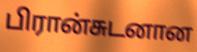
பிரான்சுடனான